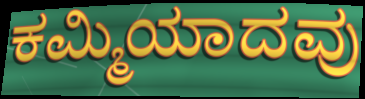
ಕಮ್ಮಿಯಾದವು